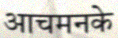
आचमनके